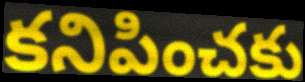
కనిపించకు